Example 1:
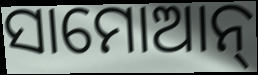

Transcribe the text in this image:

ସାମୋଆନ୍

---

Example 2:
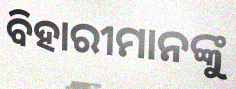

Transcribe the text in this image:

ବିହାରୀମାନଙ୍କୁ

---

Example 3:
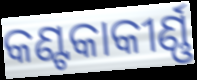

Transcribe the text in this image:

କଣ୍ଟକାକୀର୍ଣ୍ଣ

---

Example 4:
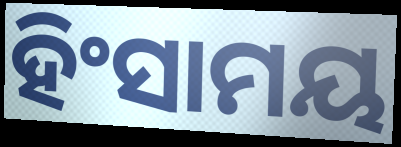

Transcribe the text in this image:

ହିଂସାମୟ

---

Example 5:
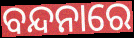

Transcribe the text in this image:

ବନ୍ଦନାରେ